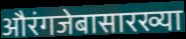
औरंगजेबासारख्या